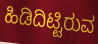
ಹಿಡಿದಿಟ್ಟಿರುವ